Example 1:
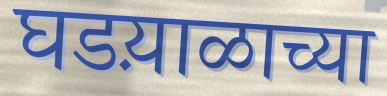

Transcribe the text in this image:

घडय़ाळाच्या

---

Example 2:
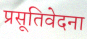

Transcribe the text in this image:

प्रसूतिवेदना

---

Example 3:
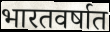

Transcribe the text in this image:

भारतवर्षात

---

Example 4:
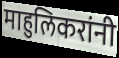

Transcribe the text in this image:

माहुलिकरांनी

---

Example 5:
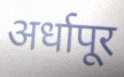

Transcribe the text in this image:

अर्धापूर